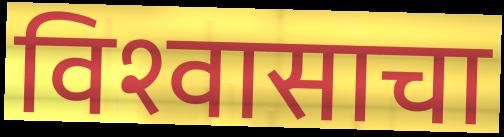
विश्वासाचा